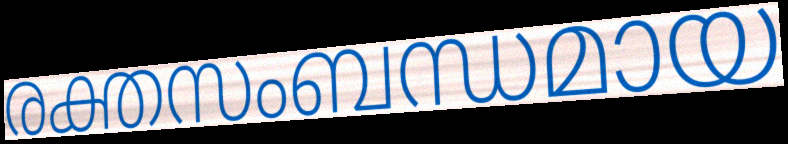
രക്തസംബന്ധമായ